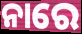
ନାରେ